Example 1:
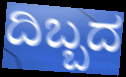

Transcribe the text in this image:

ದಿಬ್ಬದ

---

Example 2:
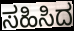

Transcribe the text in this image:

ಸಹಿಸಿದ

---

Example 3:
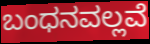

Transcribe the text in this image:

ಬಂಧನವಲ್ಲವೆ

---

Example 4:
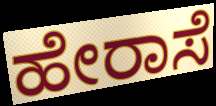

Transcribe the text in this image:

ಹೇರಾಸೆ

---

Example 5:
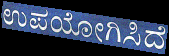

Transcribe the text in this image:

ಉಪಯೋಗಿಸಿದೆ